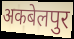
अकबेलपुर